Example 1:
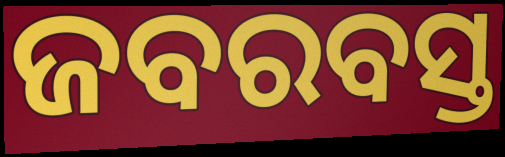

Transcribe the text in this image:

ଜବରବସ୍ତ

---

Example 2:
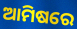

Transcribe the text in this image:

ଆମିଷରେ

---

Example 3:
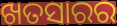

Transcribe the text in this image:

ଖତସାରର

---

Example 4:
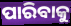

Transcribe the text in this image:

ପାରିବାକୁ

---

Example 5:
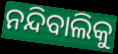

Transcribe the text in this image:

ନନ୍ଦିବାଲିକୁ